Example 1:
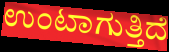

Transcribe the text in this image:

ಉಂಟಾಗುತ್ತಿದೆ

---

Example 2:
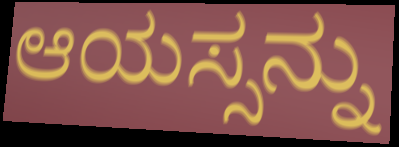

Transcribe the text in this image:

ಆಯಸ್ಸನ್ನು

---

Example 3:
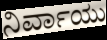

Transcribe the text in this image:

ನಿರ್ವಾಯು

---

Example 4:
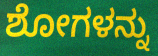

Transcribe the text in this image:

ಶೋಗಳನ್ನು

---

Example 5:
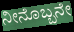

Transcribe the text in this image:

ನೀನೊಬ್ಬನೇ